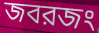
জবরজং